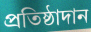
প্রতিষ্ঠাদান